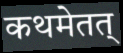
कथमेतत्